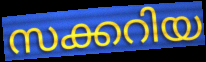
സക്കറിയ